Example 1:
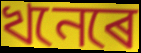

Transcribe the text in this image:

খনেৰে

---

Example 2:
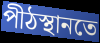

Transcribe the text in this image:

পীঠস্থানতে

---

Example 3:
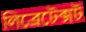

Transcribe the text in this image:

লিব্ৰেটেক্সট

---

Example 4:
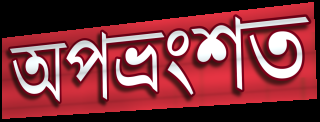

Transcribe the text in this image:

অপভ্ৰংশত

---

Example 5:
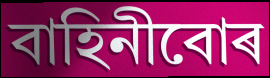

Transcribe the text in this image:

বাহিনীবোৰ